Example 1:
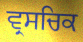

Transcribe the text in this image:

ਵ੍ਰਸਚਿਕ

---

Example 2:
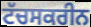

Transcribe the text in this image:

ਟੱਚਸਕਰੀਨ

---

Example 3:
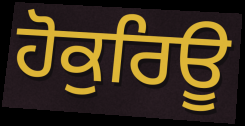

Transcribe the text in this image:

ਹੋਕੁਰਿਊ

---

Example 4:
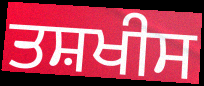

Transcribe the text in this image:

ਤਸ਼ਖੀਸ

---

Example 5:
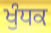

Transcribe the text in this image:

ਖੁੰਧਕ